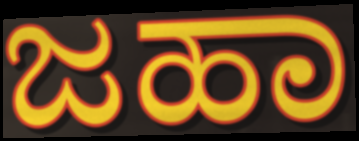
ಜಹಾ